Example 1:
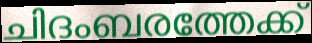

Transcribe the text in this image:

ചിദംബരത്തേക്ക്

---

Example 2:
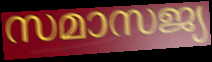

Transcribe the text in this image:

സമാസജ്യ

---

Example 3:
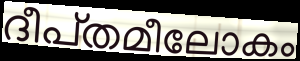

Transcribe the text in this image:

ദീപ്‌തമീലോകം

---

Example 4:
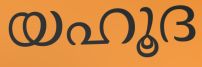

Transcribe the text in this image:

യഹൂദ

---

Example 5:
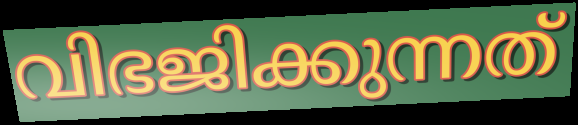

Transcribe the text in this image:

വിഭജിക്കുന്നത്